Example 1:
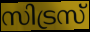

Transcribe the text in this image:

സിട്രസ്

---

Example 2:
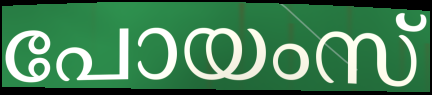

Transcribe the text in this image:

പോയംസ്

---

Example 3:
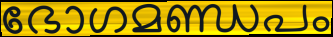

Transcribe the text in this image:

ഭോഗമണ്ഡപം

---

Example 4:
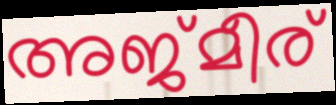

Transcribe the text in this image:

അജ്മീര്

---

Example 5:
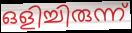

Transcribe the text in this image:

ഒളിച്ചിരുന്ന്